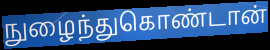
நுழைந்துகொண்டான்